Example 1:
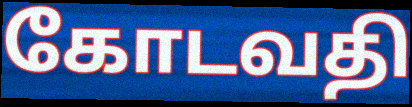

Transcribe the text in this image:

கோடவதி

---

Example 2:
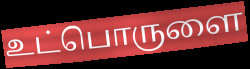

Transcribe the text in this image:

உட்பொருளை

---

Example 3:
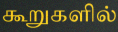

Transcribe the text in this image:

கூறுகளில்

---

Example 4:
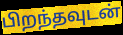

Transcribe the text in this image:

பிறந்தவுடன்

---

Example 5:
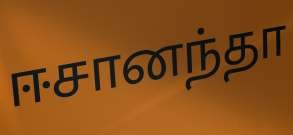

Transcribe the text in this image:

ஈசானந்தா